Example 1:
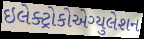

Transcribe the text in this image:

ઇલેક્ટ્રોકોએગ્યુલેશન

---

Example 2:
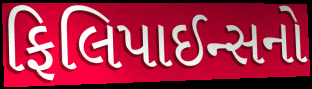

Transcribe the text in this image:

ફિલિપાઈન્સનો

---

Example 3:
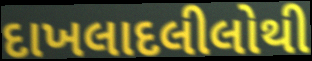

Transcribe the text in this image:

દાખલાદલીલોથી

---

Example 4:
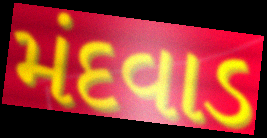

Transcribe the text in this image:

મંદવાડ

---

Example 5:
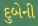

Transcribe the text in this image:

દુબેની